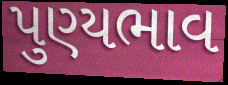
પુણ્યભાવ